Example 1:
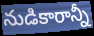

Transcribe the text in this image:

నుడికారాన్నీ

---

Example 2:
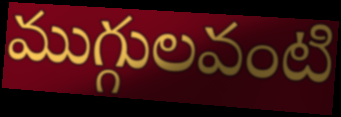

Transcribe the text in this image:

ముగ్గులవంటి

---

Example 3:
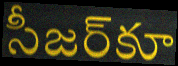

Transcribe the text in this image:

సీజర్‌కూ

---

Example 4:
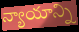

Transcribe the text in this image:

న్యాయాన్ని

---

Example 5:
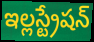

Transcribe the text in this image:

ఇల్లస్ట్రేషన్